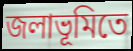
জলাভূমিতে